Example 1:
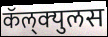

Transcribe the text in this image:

कॅल्क्युलस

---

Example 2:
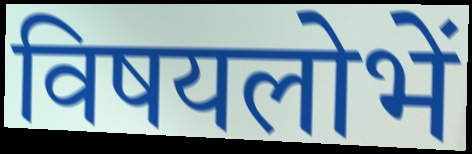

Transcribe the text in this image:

विषयलोभें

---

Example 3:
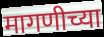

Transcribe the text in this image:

मागणीच्या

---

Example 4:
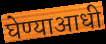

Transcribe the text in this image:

घेण्याआधी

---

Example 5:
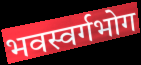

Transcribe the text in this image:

भवस्वर्गभोग